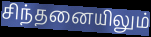
சிந்தனையிலும்